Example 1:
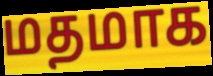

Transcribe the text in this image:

மதமாக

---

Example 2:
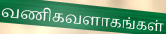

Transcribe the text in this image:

வணிகவளாகங்கள்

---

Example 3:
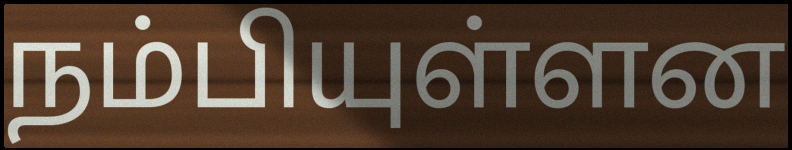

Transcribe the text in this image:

நம்பியுள்ளன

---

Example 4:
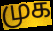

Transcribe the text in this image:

முக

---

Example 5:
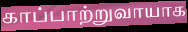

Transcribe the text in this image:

காப்பாற்றுவாயாக